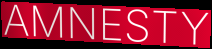
AMNESTY